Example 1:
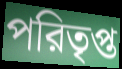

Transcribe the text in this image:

পরিতৃপ্ত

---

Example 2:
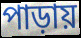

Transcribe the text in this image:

পাড়ায়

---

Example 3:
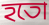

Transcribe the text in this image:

হতো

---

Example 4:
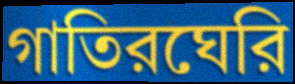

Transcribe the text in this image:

গাতিরঘেরি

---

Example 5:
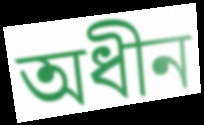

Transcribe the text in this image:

অধীন